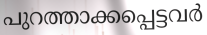
പുറത്താക്കപ്പെട്ടവർ